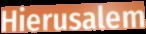
Hierusalem